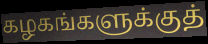
கழகங்களுக்குத்